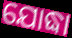
ଯୋଦ୍ଧା